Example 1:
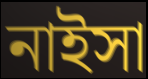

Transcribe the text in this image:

নাইসা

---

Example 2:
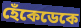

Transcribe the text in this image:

হেঁকেডেকে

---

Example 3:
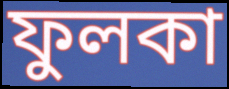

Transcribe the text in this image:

ফুলকা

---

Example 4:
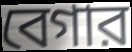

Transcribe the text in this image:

বেগার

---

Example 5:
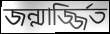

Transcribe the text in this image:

জন্মার্জ্জিত